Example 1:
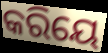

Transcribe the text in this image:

କରିୟେ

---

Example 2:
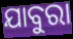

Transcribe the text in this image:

ଯାବୁରା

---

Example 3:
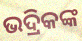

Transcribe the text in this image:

ଭଦ୍ରିକଙ୍କ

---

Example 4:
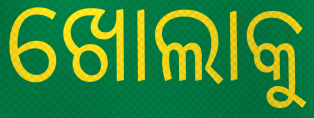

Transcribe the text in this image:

ଖୋଲାକୁ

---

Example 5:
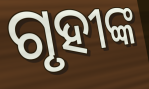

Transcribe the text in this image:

ଗୃହୀଙ୍କ